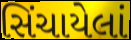
સિંચાયેલાં